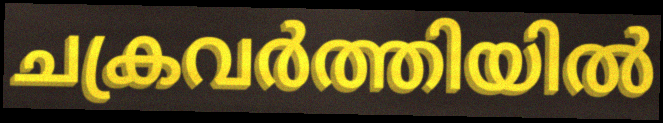
ചക്രവർത്തിയിൽ